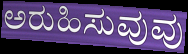
ಅರುಹಿಸುವುವು